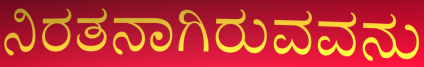
ನಿರತನಾಗಿರುವವನು